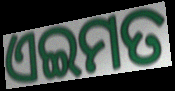
ଏଇମତ